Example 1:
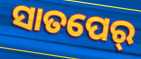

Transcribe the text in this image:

ସାତପେର୍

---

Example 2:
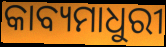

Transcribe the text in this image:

କାବ୍ୟମାଧୁରୀ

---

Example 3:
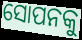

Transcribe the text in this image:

ସୋପନକୁ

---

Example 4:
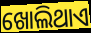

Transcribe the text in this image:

ଖୋଲିଥାଏ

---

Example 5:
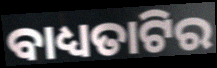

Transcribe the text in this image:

ବାଧ୍ୟତାଟିର